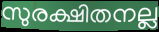
സുരക്ഷിതനല്ല